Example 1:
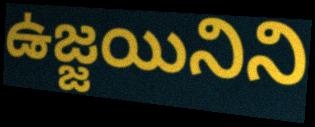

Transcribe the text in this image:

ఉజ్జయినిని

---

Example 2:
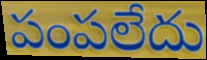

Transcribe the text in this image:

పంపలేదు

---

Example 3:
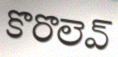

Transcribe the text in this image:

కొరొలెవ్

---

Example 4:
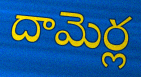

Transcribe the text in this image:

దామెర్ల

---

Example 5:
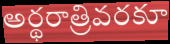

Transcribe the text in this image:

అర్థరాత్రివరకూ